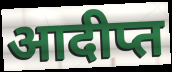
आदीप्त